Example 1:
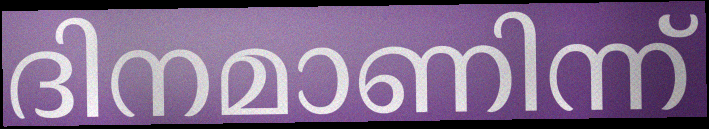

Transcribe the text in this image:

ദിനമാണിന്ന്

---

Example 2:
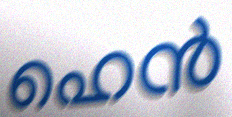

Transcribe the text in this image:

ഹെൻ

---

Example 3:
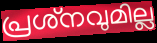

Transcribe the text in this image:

പ്രശ്‌നവുമില്ല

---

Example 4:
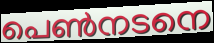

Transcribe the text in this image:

പെൺനടനെ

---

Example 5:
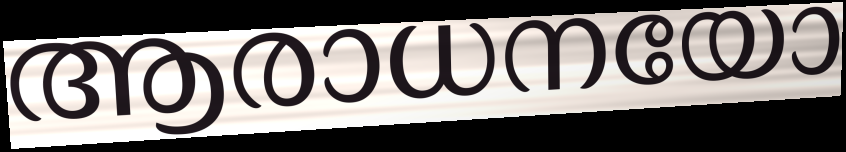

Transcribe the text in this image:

ആരാധനയോ